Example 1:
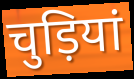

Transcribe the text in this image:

चुड़ियां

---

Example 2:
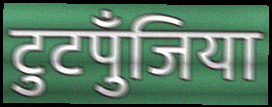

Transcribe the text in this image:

टुटपुँजिया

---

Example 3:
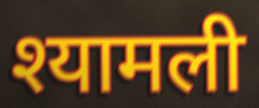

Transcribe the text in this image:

श्यामली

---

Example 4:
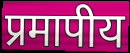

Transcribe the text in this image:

प्रमापीय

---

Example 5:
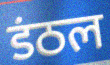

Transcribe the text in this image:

डंठल